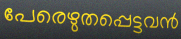
പേരെഴുതപ്പെട്ടവൻ